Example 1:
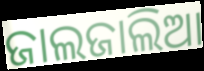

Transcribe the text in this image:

ଜାଲଜାଲିଆ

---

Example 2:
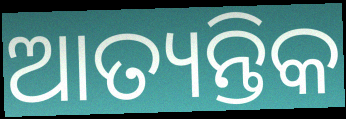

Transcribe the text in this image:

ଆତ୍ୟନ୍ତିକ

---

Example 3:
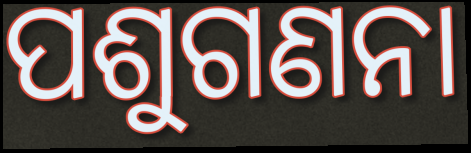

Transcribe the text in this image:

ପଶୁଗଣନା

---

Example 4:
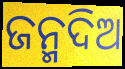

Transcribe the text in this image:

ଜନ୍ମଦିଅ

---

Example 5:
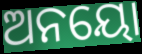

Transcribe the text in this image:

ଅନୟୋ